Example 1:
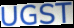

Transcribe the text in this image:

UGST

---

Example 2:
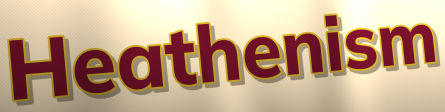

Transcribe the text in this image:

Heathenism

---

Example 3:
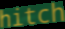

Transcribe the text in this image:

hitch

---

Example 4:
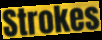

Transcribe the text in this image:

Strokes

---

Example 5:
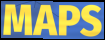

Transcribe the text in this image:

MAPS